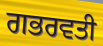
ਗਭਰਵਤੀ